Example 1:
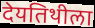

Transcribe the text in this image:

देयतिथीला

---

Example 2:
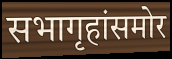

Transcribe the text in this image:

सभागृहांसमोर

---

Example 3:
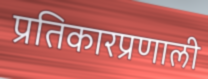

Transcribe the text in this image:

प्रतिकारप्रणाली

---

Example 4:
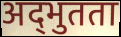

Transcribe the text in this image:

अद्‌भुतता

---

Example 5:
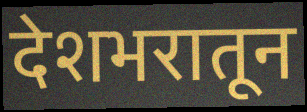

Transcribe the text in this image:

देशभरातून